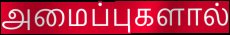
அமைப்புகளால்